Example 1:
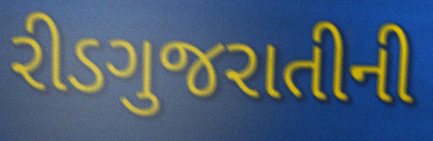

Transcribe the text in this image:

રીડગુજરાતીની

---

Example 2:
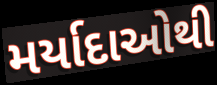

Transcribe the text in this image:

મર્યાદાઓથી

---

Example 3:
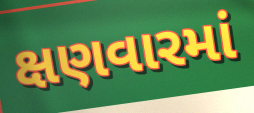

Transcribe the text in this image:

ક્ષણવારમાં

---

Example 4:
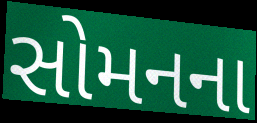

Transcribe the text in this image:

સોમનના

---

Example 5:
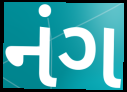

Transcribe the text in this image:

નંગ